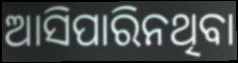
ଆସିପାରିନଥିବା